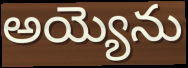
అయ్యెను